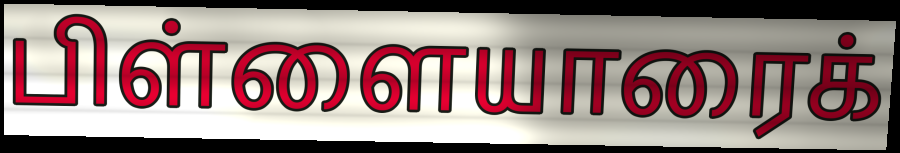
பிள்ளையாரைக்